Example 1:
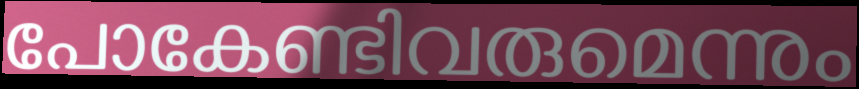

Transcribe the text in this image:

പോകേണ്ടിവരുമെന്നും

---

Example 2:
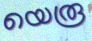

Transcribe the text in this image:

യെരൂ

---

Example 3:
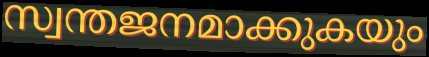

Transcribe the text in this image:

സ്വന്തജനമാക്കുകയും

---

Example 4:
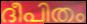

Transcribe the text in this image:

ദീപിതം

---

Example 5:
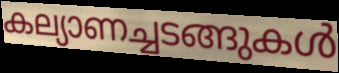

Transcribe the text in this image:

കല്യാണച്ചടങ്ങുകൾ